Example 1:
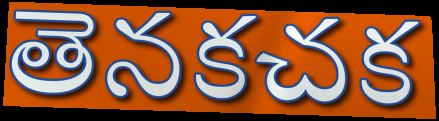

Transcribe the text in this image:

తెనకచక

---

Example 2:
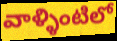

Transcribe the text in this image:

వాళ్ళింటిలో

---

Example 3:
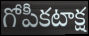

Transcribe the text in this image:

గోపీకటాక్ష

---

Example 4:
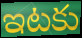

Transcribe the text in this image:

ఇటకు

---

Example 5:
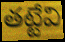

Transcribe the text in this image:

తట్టేవి